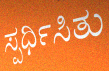
ಸ್ಪರ್ಧಿಸಿತು